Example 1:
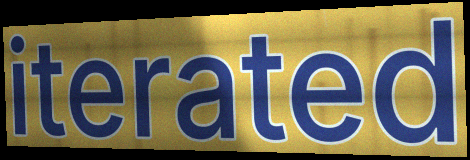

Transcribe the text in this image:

iterated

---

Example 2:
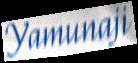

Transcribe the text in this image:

Yamunaji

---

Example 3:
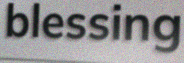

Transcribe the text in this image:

blessing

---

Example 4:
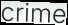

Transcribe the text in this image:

crime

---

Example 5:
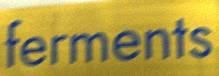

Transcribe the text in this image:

ferments